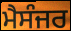
ਮੈਸੰਜਰ